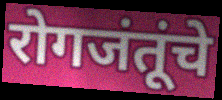
रोगजंतूंचे